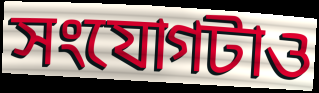
সংযোগটাও